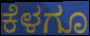
ಕೆಳಗೂ